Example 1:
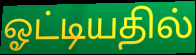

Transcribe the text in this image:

ஓட்டியதில்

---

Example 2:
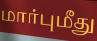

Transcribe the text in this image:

மார்புமீது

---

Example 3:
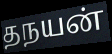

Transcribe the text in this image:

தநயன்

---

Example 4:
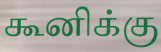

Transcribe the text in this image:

கூனிக்கு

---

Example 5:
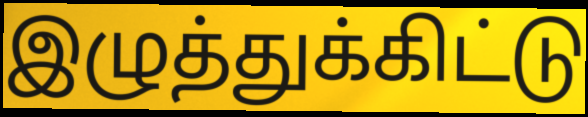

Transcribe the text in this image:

இழுத்துக்கிட்டு